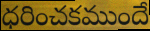
ధరించకముందే